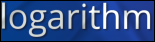
logarithm